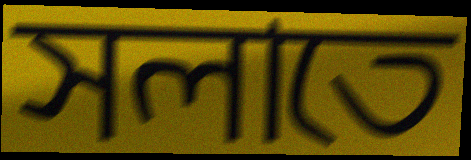
সলাতে